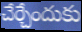
చేర్చేందుకు